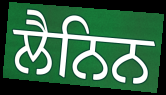
ਲੈਨਿਨ